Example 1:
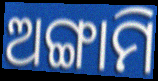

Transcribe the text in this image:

ଅଙ୍ଗାମି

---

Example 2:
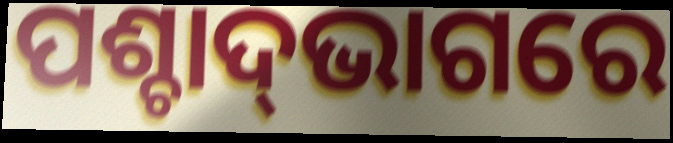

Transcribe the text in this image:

ପଶ୍ଚାଦ୍‌ଭାଗରେ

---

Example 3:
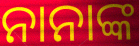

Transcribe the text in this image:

ନାନାଙ୍କ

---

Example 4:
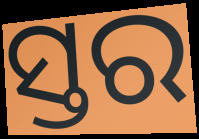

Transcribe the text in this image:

ସ୍ତର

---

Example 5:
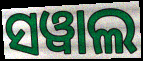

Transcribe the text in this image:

ସୱାଲ